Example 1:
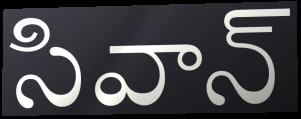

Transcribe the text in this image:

సివాన్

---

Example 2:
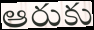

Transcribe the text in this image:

ఆరుకు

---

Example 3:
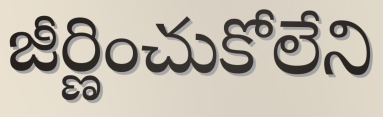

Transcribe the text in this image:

జీర్ణించుకోలేని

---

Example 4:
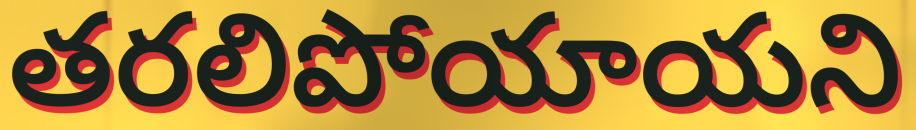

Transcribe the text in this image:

తరలిపోయాయని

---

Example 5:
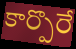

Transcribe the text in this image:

కార్పొరే